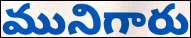
మునిగారు